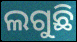
ଲଗୁଛି